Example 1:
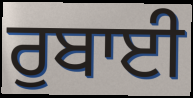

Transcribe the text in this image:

ਰੁਬਾਈ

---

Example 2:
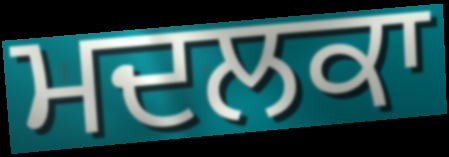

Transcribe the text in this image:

ਮਦਲਕਾ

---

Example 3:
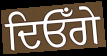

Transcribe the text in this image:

ਦਿਓਁਗੇ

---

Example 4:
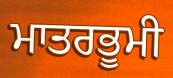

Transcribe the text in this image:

ਮਾਤਰਭੂਮੀ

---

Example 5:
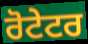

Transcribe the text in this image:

ਰੋਟੇਟਰ